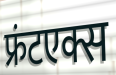
फ्रंटएक्स